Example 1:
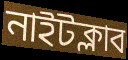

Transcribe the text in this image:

নাইটক্লাব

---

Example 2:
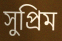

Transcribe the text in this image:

সুপ্রিম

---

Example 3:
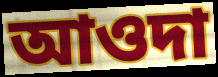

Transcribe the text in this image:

আওদা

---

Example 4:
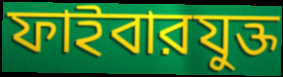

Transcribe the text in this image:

ফাইবারযুক্ত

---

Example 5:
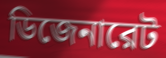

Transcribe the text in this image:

ডিজেনারেট